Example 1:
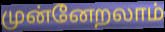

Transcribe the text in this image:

முன்னேறலாம்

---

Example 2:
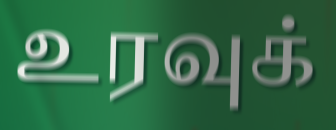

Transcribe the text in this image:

உரவுக்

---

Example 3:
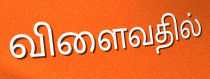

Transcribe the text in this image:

விளைவதில்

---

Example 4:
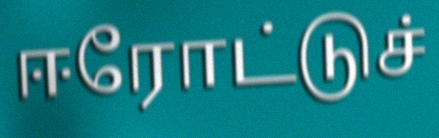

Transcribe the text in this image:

ஈரோட்டுச்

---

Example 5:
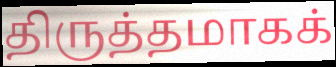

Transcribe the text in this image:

திருத்தமாகக்